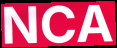
NCA